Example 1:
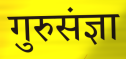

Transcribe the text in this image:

गुरुसंज्ञा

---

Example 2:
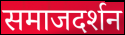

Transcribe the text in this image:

समाजदर्शन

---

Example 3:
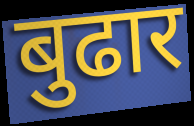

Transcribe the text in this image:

बुढार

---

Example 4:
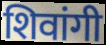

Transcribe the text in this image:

शिवांगी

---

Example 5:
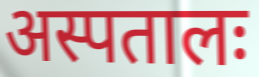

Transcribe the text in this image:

अस्पतालः